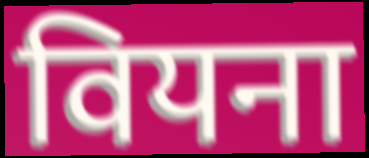
वियना